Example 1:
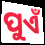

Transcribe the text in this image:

ପୁଏଁ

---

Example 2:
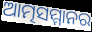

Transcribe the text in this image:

ଆତ୍ମସମ୍ମାନର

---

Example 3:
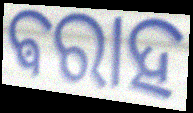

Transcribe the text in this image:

ଵରାହ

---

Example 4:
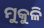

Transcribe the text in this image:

ମୁକୁଳି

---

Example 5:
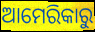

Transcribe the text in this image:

ଆମେରିକାରୁ